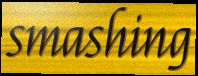
smashing